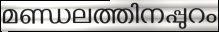
മണ്ഡലത്തിനപ്പുറം